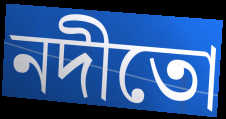
নদীতো